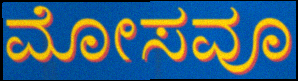
ಮೋಸವೂ